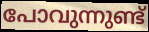
പോവുന്നുണ്ട്